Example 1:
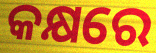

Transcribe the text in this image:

କକ୍ଷରେ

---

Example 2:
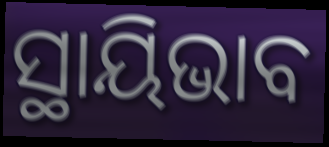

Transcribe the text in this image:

ସ୍ଥାୟିଭାବ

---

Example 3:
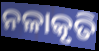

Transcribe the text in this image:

ନଳାକୃତି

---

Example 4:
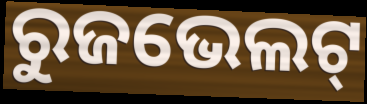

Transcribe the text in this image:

ରୁଜଭେଲଟ୍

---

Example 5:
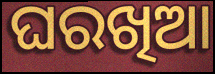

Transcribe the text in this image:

ଘରଖିଆ